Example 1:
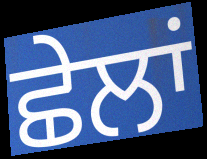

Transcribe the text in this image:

ਛੇਲਾਂ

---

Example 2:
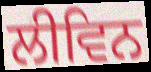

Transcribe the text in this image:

ਲੀਵਿਨ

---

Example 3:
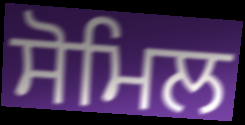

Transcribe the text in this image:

ਸੋਮਿਲ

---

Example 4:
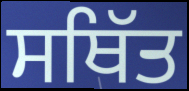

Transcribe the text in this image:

ਸਥਿੱਤ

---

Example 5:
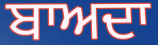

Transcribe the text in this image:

ਬਾਅਦਾ